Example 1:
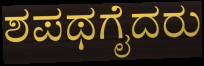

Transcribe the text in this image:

ಶಪಥಗೈದರು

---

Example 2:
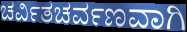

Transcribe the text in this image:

ಚರ್ವಿತಚರ್ವಣವಾಗಿ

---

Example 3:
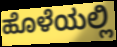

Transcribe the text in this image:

ಹೊಳೆಯಲ್ಲಿ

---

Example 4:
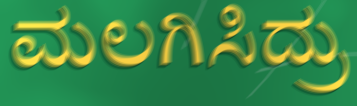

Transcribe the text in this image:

ಮಲಗಿಸಿದ್ರು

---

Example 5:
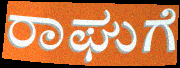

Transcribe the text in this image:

ರಾಘುಗೆ